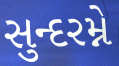
સુન્દરમ્ને